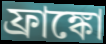
ফ্রাঙ্কো